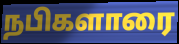
நபிகளாரை